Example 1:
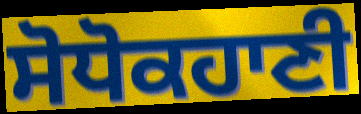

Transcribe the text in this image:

ਸੋਧੋਕਹਾਣੀ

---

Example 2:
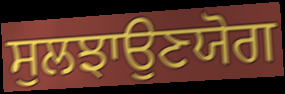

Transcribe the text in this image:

ਸੁਲਝਾਉਣਯੋਗ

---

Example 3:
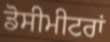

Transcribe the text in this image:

ਡੋਸੀਮੀਟਰਾਂ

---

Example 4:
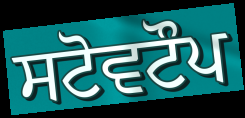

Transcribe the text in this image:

ਸਟੋਵਟੌਪ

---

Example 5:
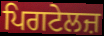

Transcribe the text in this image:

ਪਿਗਟੇਲਜ਼